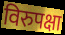
विरुपक्षा